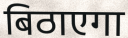
बिठाएगा